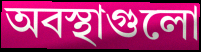
অবস্থাগুলো